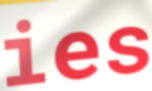
ies